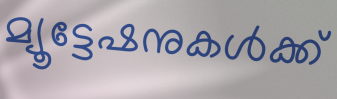
മ്യൂട്ടേഷനുകൾക്ക്